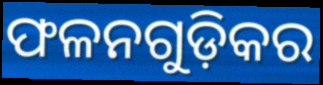
ଫଳନଗୁଡ଼ିକର